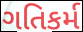
ગતિકર્મ